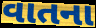
વાતના